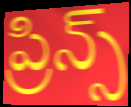
ప్రిన్స్